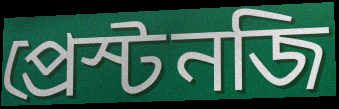
প্রেস্টনজি